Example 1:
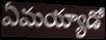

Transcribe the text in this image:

ఏమయ్యాడో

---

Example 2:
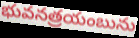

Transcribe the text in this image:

భువనత్రయంబును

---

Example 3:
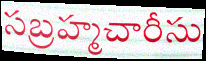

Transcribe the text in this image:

సబ్రహ్మచారీసు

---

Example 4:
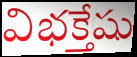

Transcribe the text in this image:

విభక్తేషు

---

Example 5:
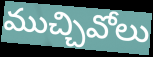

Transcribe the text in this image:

ముచ్చివోలు